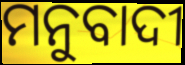
ମନୁବାଦୀ